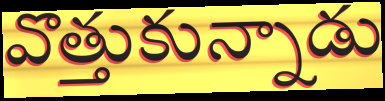
వొత్తుకున్నాడు